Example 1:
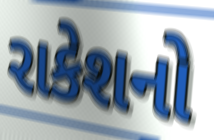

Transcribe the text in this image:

રાકેશનો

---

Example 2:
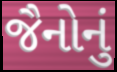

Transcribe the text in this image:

જૈનોનું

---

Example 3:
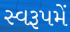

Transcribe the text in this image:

સ્વરૂપમેં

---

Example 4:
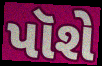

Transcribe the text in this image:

પૉશે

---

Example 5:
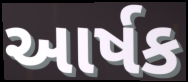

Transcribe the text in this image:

આર્ષક